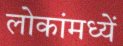
लोकांमध्यें